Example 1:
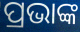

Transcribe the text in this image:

ପ୍ରଭାଙ୍କ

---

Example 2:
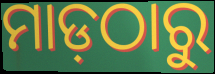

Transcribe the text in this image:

ମାଡ଼ଠାରୁ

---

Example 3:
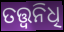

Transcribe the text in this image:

ତତ୍ତ୍ଵନିଧି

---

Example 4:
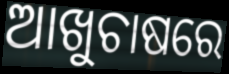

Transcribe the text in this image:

ଆଖୁଚାଷରେ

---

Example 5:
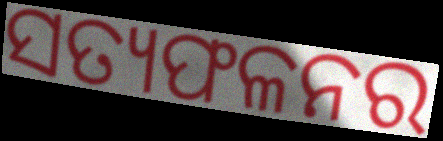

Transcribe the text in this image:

ସତ୍ୟଫଳନର